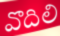
వొదిలి